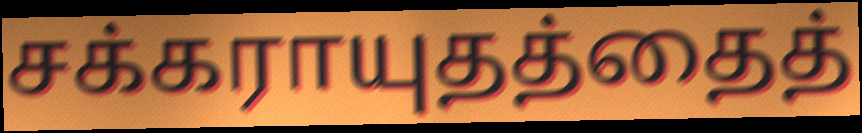
சக்கராயுதத்தைத்